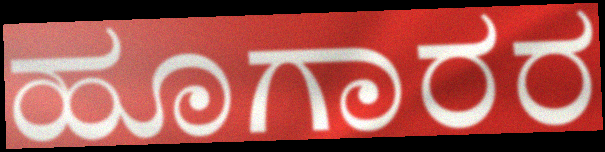
ಹೂಗಾರರ